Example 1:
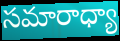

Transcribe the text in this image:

సమారాధ్యా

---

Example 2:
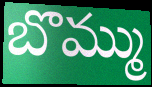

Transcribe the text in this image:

బొమ్ము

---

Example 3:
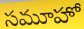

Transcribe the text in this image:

సమూహో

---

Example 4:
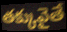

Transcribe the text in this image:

తక్కువైతే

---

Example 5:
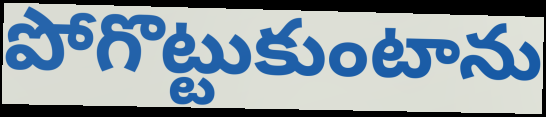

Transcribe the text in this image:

పోగొట్టుకుంటాను